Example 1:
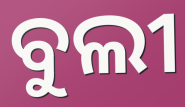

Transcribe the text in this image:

ବୁଲୀ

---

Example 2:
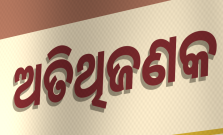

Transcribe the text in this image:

ଅତିଥିଜଣକ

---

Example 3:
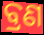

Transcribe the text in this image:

ବ୍ରଣ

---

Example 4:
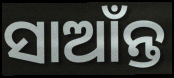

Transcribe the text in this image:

ସାଆଁନ୍ତ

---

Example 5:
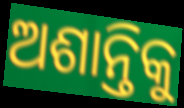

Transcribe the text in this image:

ଅଶାନ୍ତିକୁ